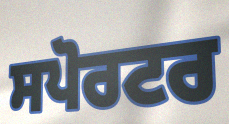
ਸਪੋਰਟਰ